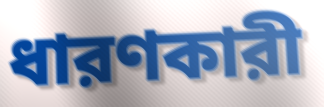
ধারণকারী